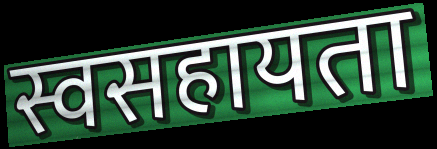
स्‍वसहायता